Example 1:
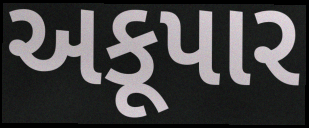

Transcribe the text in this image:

અકૂપાર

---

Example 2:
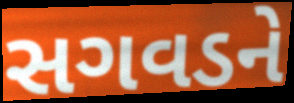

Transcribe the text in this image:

સગવડને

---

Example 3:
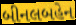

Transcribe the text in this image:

બીનલબહેન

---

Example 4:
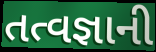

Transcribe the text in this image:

તત્વજ્ઞાની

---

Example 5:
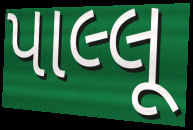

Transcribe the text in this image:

પાલ્લૂ